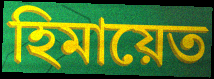
হিমায়েত